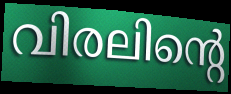
വിരലിന്റെ